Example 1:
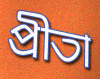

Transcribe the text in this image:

প্রীতা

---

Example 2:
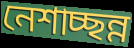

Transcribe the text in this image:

নেশাচ্ছন্ন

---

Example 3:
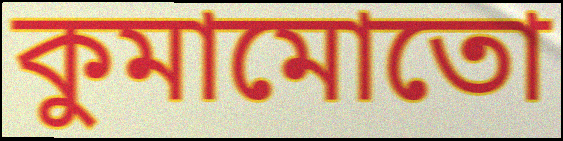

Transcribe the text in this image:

কুমামোতো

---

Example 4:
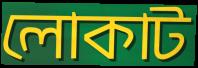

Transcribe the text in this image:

লোকাট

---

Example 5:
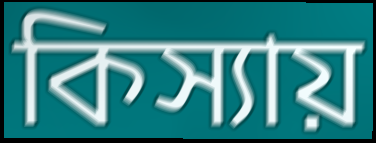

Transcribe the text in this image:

কিস্যায়